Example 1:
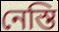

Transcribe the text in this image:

নেস্তি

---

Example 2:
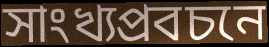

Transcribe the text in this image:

সাংখ্যপ্রবচনে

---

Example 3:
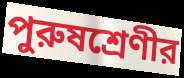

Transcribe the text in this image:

পুরুষশ্রেণীর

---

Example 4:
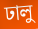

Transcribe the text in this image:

ঢালু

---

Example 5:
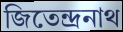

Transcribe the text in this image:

জিতেন্দ্রনাথ